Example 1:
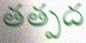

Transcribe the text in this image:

తత్పద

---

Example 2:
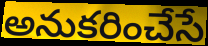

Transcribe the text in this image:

అనుకరించేసే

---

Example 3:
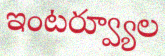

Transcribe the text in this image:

ఇంటర్వ్యూల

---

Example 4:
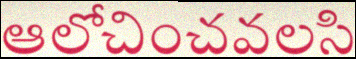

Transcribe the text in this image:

ఆలోచించవలసి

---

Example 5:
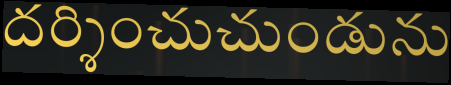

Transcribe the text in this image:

దర్శించుచుండును